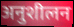
अनुशीलन